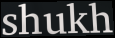
shukh